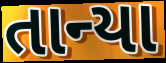
તાન્યા